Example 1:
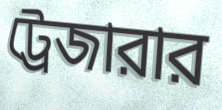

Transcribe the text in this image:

ট্রেজারার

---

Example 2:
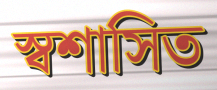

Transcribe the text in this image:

স্বশাসিত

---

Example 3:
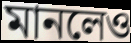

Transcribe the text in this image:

মানলেও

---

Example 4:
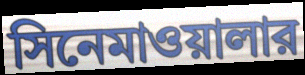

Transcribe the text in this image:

সিনেমাওয়ালার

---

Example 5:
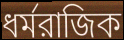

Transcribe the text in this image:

ধর্মরাজিক